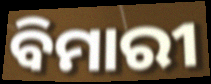
ବିମାରୀ